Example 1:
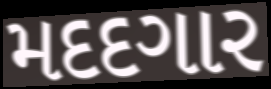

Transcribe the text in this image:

મદદગાર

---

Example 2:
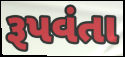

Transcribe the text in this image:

રૂપવંતા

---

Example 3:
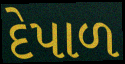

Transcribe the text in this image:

દેપાળ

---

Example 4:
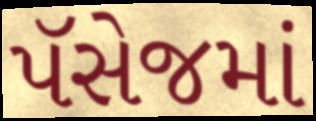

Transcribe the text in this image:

પૅસેજમાં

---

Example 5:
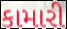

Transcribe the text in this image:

કામારી